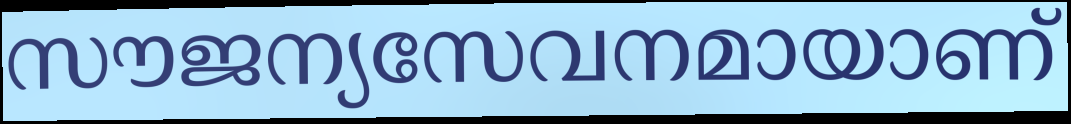
സൗജന്യസേവനമായാണ്